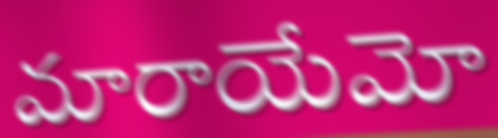
మారాయేమో